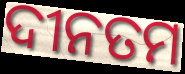
ଦୀନତମ